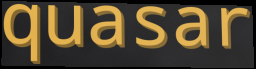
quasar